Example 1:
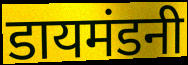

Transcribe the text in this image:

डायमंडनी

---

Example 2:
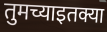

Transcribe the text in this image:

तुमच्याइतक्या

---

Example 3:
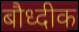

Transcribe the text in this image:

बौध्दीक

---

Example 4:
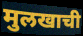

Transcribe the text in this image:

मुलखाची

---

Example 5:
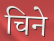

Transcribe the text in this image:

चिने